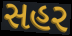
સહર